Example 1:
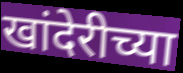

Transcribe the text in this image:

खांदेरीच्या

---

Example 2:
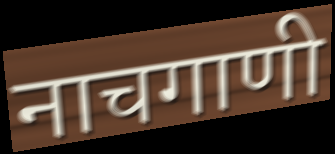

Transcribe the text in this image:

नाचगाणी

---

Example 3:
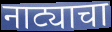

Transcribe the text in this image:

नाट्याचा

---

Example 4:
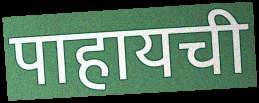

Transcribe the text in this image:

पाहायची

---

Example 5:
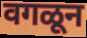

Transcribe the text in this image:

वगळून